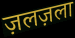
ज़लज़ला